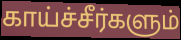
காய்ச்சீர்களும்